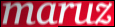
maruz